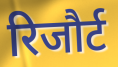
रिजौर्ट